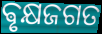
ଵୃକ୍ଷଜଗତ